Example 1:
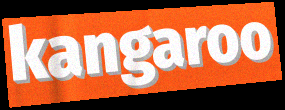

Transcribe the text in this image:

kangaroo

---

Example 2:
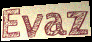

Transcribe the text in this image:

Evaz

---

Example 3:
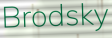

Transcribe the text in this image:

Brodsky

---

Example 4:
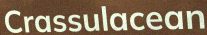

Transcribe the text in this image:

Crassulacean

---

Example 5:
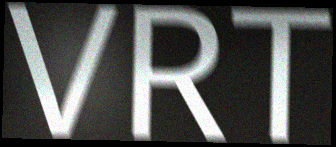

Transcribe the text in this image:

VRT